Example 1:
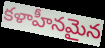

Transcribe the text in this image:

కళాహీనమైన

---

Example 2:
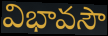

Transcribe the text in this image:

విభావసౌ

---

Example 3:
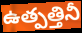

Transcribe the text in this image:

ఉత్పత్తినీ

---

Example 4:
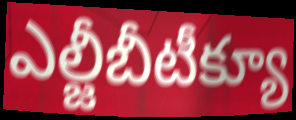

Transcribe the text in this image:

ఎల్జీబీటీక్యూ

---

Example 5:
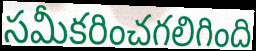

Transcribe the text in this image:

సమీకరించగలిగింది